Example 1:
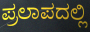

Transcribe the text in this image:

ಪ್ರಲಾಪದಲ್ಲಿ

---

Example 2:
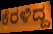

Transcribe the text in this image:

ಕೆರಳಿದ್ದ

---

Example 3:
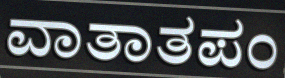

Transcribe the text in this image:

ವಾತಾತಪಂ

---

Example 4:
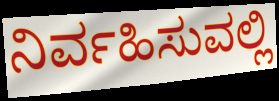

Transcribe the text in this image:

ನಿರ್ವಹಿಸುವಲ್ಲಿ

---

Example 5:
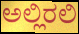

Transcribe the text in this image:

ಅಲ್ಲಿರಲಿ